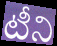
టీని